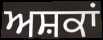
ਅਸ਼ਕਾਂ